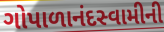
ગોપાળાનંદસ્વામીની